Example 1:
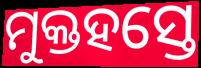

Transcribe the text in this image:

ମୁକ୍ତହସ୍ତେ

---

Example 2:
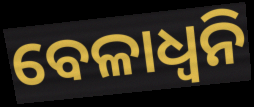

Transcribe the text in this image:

ବେଳାଧ୍ୱନି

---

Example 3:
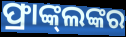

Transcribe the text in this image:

ଫ୍ରାଙ୍କ୍‌ଲଙ୍କର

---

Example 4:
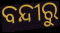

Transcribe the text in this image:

ବନ୍ଦୀରୁ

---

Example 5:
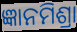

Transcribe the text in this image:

ଜ୍ଞାନମିଶ୍ରା